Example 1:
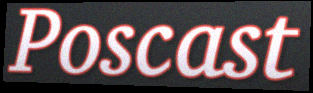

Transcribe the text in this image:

Poscast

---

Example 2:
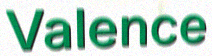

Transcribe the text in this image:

Valence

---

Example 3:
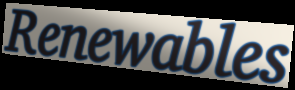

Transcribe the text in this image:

Renewables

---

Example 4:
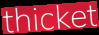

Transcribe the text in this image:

thicket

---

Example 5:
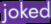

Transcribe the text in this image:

joked